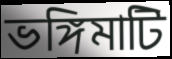
ভঙ্গিমাটি